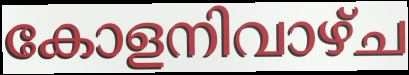
കോളനിവാഴ്ച